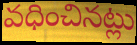
వధించినట్లు